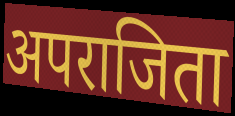
अपराजिता